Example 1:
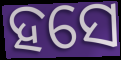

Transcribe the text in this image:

ହସେ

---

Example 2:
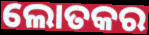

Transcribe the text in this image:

ଲୋତକର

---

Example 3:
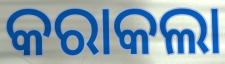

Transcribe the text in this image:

କରାକଲା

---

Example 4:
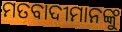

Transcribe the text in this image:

ମତବାଦୀମାନଙ୍କୁ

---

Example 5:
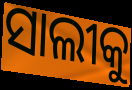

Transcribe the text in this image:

ସାଲୀକୁ